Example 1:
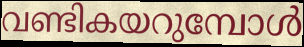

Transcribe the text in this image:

വണ്ടികയറുമ്പോൾ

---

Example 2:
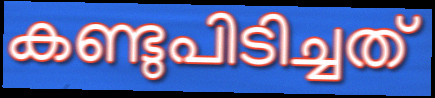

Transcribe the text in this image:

കണ്ടുപിടിച്ചത്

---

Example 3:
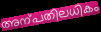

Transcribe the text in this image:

അന്പതിലധികം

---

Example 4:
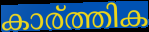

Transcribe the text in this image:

കാര്ത്തിക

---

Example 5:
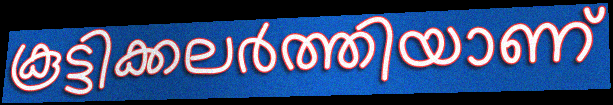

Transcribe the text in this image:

കൂട്ടിക്കലർത്തിയാണ്